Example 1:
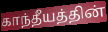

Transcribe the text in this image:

காந்தீயத்தின்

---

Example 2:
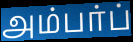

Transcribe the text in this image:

அம்பர்ப்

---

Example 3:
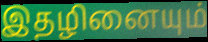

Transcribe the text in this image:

இதழினையும்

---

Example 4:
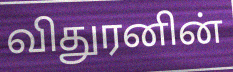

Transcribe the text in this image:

விதுரனின்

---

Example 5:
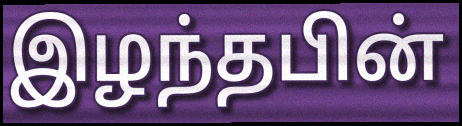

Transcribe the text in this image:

இழந்தபின்